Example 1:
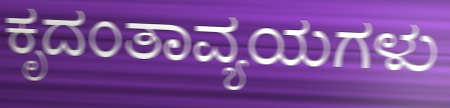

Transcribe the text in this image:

ಕೃದಂತಾವ್ಯಯಗಳು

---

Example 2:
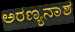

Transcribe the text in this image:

ಅರಣ್ಯನಾಶ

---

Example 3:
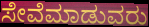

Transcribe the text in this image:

ಸೇವೆಮಾಡುವರು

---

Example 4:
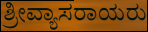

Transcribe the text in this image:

ಶ್ರೀವ್ಯಾಸರಾಯರು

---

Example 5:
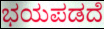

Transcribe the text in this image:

ಭಯಪಡದೆ